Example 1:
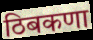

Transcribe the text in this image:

ठिबकणा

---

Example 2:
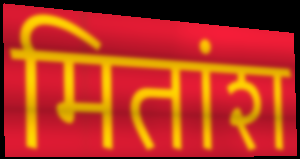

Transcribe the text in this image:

मितांश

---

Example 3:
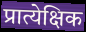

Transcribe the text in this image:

प्रात्येक्षिक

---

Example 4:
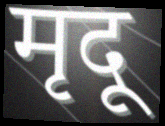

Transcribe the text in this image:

मृदू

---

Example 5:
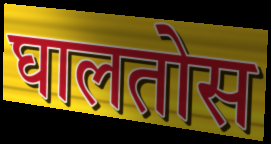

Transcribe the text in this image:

घालतोस